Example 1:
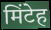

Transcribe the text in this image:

मिंटेह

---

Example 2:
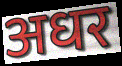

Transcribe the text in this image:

अधर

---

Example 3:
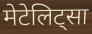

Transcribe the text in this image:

मेटेलिट्सा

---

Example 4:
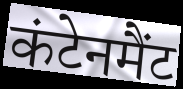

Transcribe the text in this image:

कंटेनमैंट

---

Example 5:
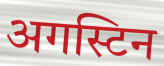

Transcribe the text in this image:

अगस्टिन